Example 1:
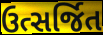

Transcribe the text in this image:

ઉત્સર્જિત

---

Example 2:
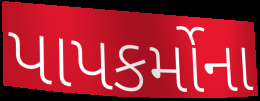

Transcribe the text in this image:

પાપકર્મોના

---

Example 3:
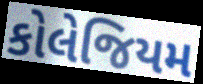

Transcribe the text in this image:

કોલેજિયમ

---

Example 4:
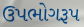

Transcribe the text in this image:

ઉપભોગરૂપ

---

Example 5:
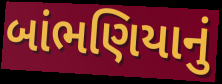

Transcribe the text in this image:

બાંભણિયાનું